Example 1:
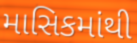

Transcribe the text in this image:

માસિકમાંથી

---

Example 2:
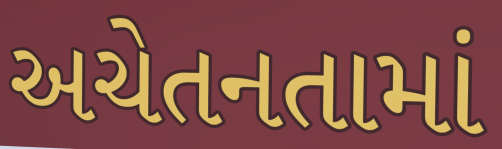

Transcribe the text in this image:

અચેતનતામાં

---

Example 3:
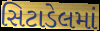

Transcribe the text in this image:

સિટાડેલમાં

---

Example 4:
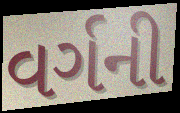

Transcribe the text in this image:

વર્ગની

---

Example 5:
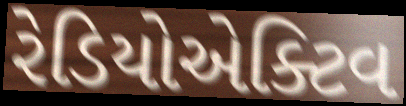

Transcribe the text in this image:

રેડિયોએક્ટિવ